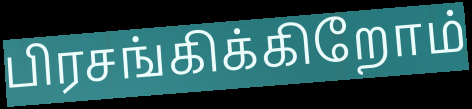
பிரசங்கிக்கிறோம்